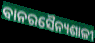
ବାନରସୈନ୍ୟଶାଳୀ